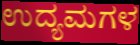
ಉದ್ಯಮಗಳ